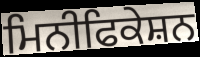
ਮਿਨੀਫਿਕੇਸ਼ਨ